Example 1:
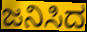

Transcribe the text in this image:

ಜನಿಸಿದ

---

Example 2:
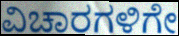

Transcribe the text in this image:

ವಿಚಾರಗಳಿಗೇ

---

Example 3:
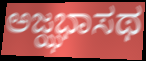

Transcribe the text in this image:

ಅಜ್ಝಭಾಸಥ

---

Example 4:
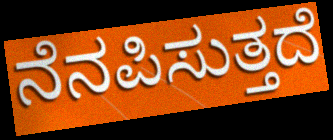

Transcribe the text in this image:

ನೆನಪಿಸುತ್ತದೆ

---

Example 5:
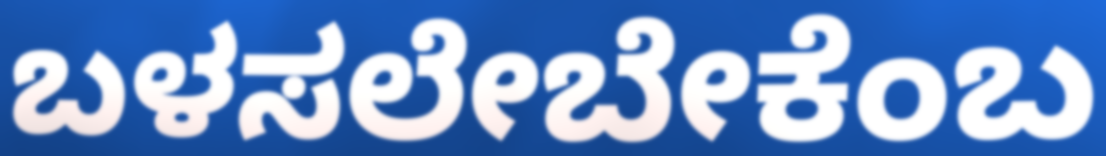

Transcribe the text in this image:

ಬಳಸಲೇಬೇಕೆಂಬ